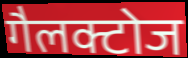
गैलक्टोज